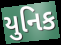
યુનિક